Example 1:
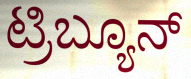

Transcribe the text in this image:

ಟ್ರಿಬ್ಯೂನ್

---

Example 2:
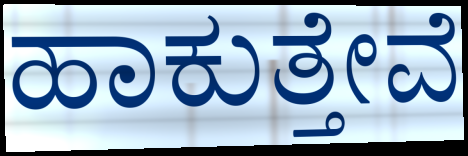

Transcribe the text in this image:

ಹಾಕುತ್ತೇವೆ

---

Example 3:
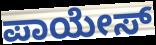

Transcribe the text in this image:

ಪಾಯೇಸ್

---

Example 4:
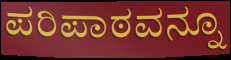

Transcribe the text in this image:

ಪರಿಪಾಠವನ್ನೂ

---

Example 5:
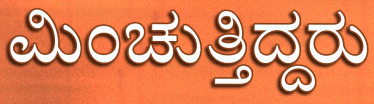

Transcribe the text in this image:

ಮಿಂಚುತ್ತಿದ್ದರು